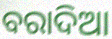
ବରାଦିଆ